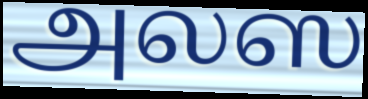
அலஸ